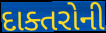
દાક્તરોની